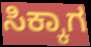
ಸಿಕ್ಕಾಗ